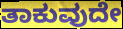
ತಾಕುವುದೇ